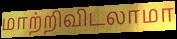
மாற்றிவிடலாமா